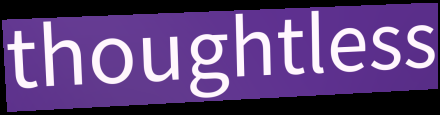
thoughtless